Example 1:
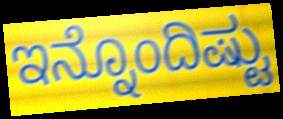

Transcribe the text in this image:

ಇನ್ನೊಂದಿಷ್ಟು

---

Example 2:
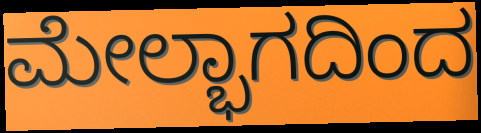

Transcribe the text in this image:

ಮೇಲ್ಭಾಗದಿಂದ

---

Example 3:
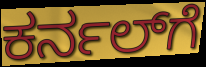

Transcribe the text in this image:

ಕರ್ನಲ್‌ಗೆ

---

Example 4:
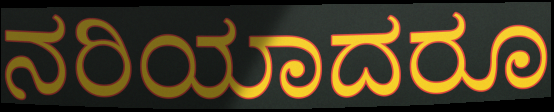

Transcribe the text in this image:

ನರಿಯಾದರೂ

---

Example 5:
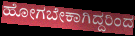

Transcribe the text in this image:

ಹೋಗಬೇಕಾಗಿದ್ದರಿಂದ